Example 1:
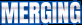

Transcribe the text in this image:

MERGING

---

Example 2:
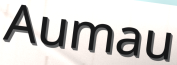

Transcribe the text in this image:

Aumau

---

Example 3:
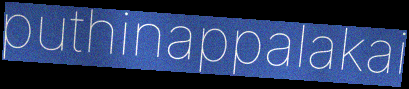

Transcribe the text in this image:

puthinappalakai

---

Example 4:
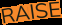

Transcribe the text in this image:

RAISE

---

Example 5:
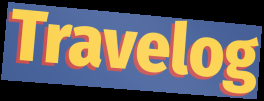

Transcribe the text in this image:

Travelog